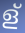
ള്